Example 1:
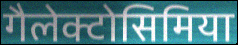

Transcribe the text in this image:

गैलेक्टोसिमिया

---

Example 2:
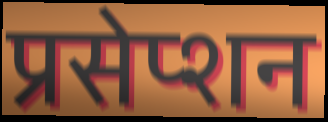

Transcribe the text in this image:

प्रसेप्शन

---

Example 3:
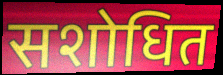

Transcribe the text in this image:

सशोधित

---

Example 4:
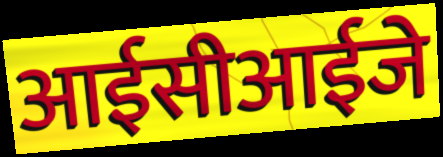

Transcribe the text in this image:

आईसीआईजे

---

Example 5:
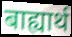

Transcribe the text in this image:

बाह्यार्थ